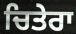
ਚਿਤੇਰਾ